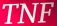
TNF